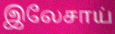
இலேசாய்